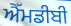
ਐੱਮਡੀਬੀ